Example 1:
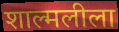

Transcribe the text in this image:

शाल्मलीला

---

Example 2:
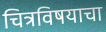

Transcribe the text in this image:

चित्रविषयाचा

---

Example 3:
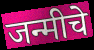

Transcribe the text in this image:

जन्मीचे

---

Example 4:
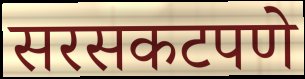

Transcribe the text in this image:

सरसकटपणे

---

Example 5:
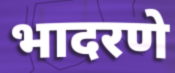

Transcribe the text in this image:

भादरणे